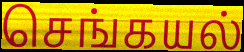
செங்கயல்